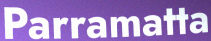
Parramatta